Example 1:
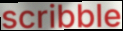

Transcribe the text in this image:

scribble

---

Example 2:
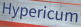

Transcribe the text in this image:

Hypericum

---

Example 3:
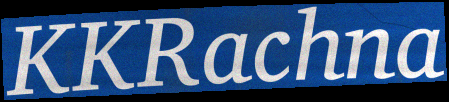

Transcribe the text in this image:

KKRachna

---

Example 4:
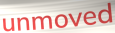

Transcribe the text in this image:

unmoved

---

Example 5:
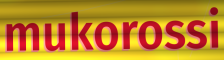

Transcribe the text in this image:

mukorossi